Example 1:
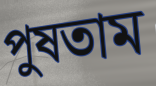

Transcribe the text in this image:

পুষতাম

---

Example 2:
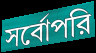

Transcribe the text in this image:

সর্বোপরি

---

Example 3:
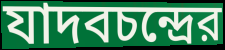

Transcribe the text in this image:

যাদবচন্দ্রের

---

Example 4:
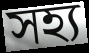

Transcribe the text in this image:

সহ্য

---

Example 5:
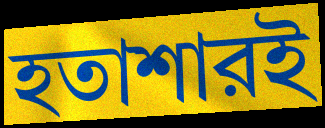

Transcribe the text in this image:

হতাশারই